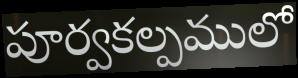
పూర్వకల్పములో